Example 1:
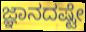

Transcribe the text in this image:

ಜ್ಞಾನದಷ್ಟೇ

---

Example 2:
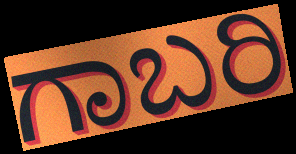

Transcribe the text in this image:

ಗಾಬರಿ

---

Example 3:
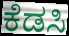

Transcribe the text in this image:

ಕೆಡಸಿ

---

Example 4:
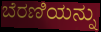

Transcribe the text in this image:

ಬೆರಣಿಯನ್ನು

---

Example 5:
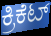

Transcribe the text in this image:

ಕ್ರಿಕೆಟ್